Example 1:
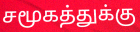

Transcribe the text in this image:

சமூகத்துக்கு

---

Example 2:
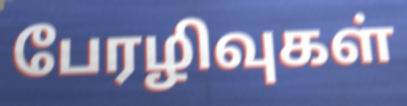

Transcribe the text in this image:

பேரழிவுகள்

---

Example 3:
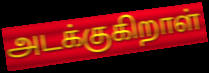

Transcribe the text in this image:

அடக்குகிறாள்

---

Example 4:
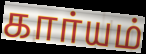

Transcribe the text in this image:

கார்யம்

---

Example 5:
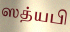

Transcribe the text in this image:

ஸத்யபி